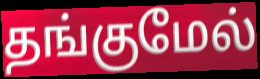
தங்குமேல்